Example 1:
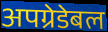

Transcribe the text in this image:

अपग्रेडेबल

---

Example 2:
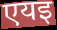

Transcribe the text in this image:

एयइ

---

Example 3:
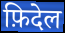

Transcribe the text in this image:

फ़िदेल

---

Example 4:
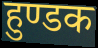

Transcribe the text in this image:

हुण्डक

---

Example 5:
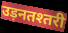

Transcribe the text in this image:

उड़नतश्तरी